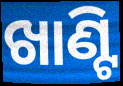
ଖାଣ୍ଟି